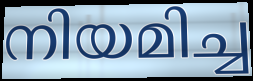
നിയമിച്ച